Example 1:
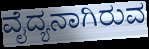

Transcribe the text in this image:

ವೈದ್ಯನಾಗಿರುವ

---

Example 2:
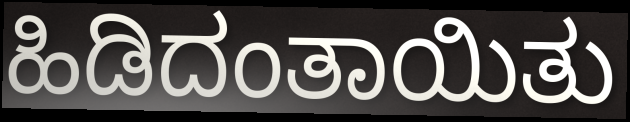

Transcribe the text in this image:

ಹಿಡಿದಂತಾಯಿತು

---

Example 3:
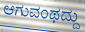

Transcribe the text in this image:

ಆಗುವಂಥದ್ದು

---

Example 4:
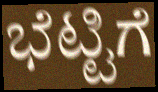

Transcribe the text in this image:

ಭೆಟ್ಟಿಗೆ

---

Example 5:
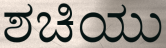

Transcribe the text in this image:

ಶಚಿಯು